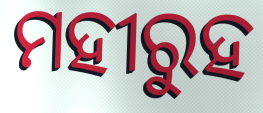
ମହୀରୁହ